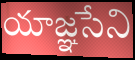
యాజ్ఞసేని